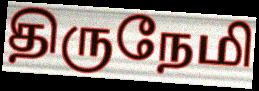
திருநேமி